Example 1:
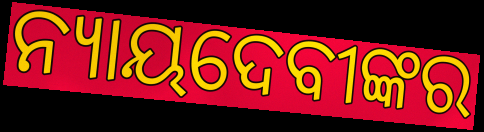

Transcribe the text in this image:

ନ୍ୟାୟଦେବୀଙ୍କର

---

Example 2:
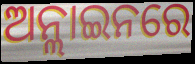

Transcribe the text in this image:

ଅନ୍ଲାଇନରେ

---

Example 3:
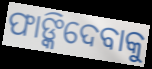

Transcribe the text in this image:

ଫାଙ୍କିଦେବାକୁ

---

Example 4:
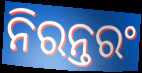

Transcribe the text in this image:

ନିରନ୍ତରଂ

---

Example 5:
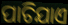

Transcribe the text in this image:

ପାଚିଯାଏ